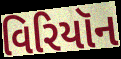
વિરિયૉન